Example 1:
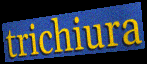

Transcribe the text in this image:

trichiura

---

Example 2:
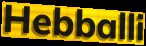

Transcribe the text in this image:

Hebballi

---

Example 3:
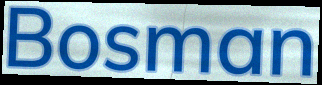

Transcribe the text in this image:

Bosman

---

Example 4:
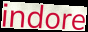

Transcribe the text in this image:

indore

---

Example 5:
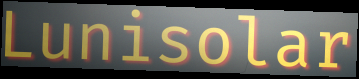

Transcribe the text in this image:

Lunisolar